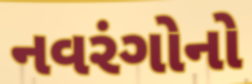
નવરંગોનો